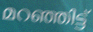
മറഞ്ഞിട്ട്